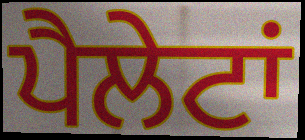
ਪੈਲੇਟਾਂ